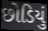
છોડિયું